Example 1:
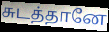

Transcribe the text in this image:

சுடத்தானே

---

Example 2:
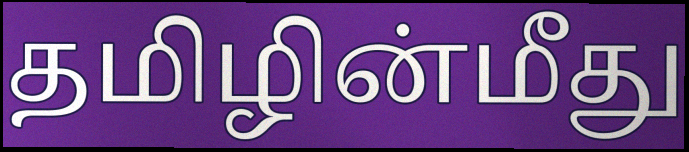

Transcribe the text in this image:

தமிழின்மீது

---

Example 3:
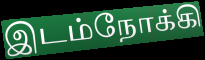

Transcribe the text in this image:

இடம்நோக்கி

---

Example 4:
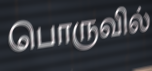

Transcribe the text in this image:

பொருவில்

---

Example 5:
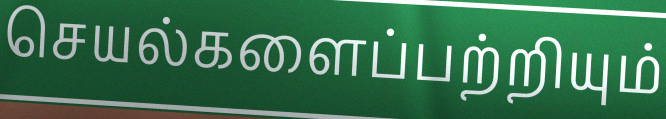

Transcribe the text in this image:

செயல்களைப்பற்றியும்